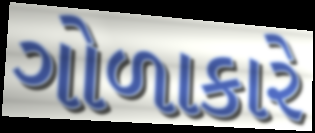
ગોળાકારે